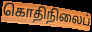
கொதிநிலைப்